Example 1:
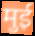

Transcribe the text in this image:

मुई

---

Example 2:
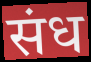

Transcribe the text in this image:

संध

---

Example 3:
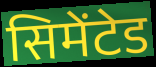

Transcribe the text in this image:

सिमेंटेड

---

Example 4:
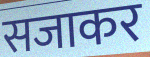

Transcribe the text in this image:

सजाकर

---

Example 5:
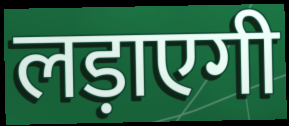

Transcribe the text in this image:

लड़ाएगी